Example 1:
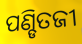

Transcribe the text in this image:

ପଣ୍ଡିତଜୀ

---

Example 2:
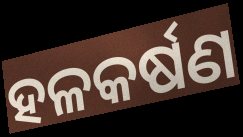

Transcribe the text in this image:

ହଳକର୍ଷଣ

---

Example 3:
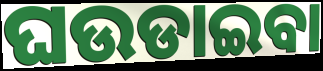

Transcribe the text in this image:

ଘଉଡାଇବା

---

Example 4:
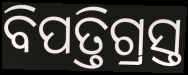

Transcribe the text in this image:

ବିପତ୍ତିଗ୍ରସ୍ତ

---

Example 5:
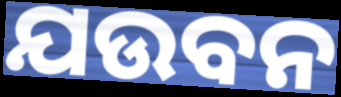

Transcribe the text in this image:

ଯଉବନ